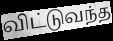
விட்டுவந்த